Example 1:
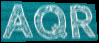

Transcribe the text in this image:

AQR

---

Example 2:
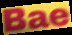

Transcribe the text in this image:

Bae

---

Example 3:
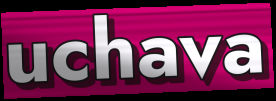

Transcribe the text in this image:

uchava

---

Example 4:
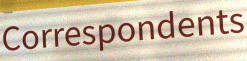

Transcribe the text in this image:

Correspondents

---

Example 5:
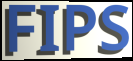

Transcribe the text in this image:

FIPS